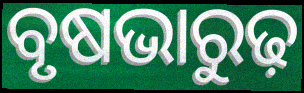
ବୃଷଭାରୁଢ଼